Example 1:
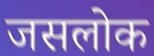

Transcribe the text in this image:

जसलोक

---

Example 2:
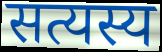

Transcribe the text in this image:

सत्यस्य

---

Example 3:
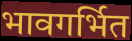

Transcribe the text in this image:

भावगर्भित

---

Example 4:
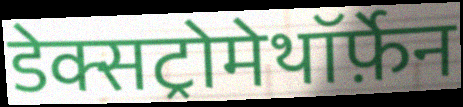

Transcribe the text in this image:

डेक्सट्रोमेथॉर्फ़ेन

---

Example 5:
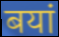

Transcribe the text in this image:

बयां